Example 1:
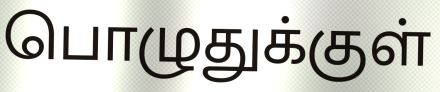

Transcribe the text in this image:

பொழுதுக்குள்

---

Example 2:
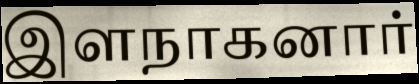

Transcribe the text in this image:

இளநாகனார்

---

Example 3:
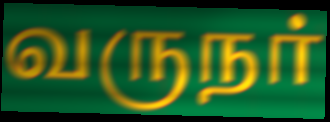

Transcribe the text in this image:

வருநர்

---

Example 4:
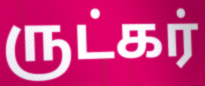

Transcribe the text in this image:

ருட்கர்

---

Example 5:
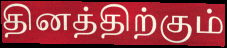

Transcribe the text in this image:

தினத்திற்கும்